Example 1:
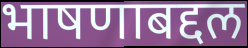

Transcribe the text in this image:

भाषणाबद्दल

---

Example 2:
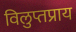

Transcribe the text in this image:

विलुप्तप्राय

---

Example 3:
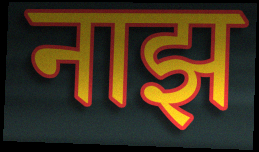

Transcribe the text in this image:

नाझ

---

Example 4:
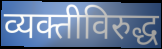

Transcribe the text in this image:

व्यक्तीविरुद्ध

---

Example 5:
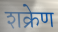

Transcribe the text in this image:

शक्रेण